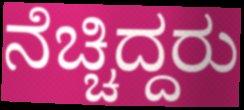
ನೆಚ್ಚಿದ್ದರು